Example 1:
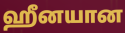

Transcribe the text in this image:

ஹீனயான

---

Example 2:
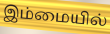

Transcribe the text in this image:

இம்மையில்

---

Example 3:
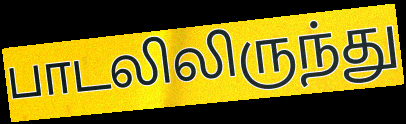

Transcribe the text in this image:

பாடலிலிருந்து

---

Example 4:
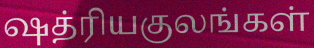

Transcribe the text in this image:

ஷத்ரியகுலங்கள்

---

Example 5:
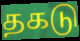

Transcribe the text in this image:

தகடு